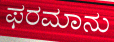
ಫರಮಾನು